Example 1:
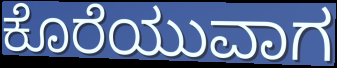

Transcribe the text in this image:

ಕೊರೆಯುವಾಗ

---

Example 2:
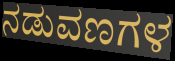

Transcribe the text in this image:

ನಡುವಣಗಳ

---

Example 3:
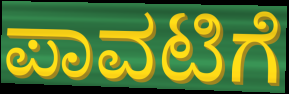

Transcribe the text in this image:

ಪಾವಟಿಗೆ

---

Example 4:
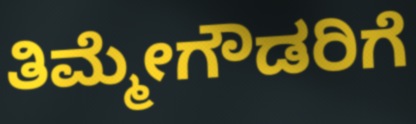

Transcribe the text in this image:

ತಿಮ್ಮೇಗೌಡರಿಗೆ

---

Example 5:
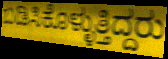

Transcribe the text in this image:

ಬಡಿಸಿಕೊಳ್ಳುತ್ತಿದ್ದರು